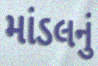
માંડલનું